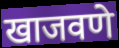
खाजवणे